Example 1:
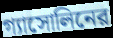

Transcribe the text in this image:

গ্যাসোলিনের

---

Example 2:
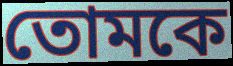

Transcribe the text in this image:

তোমকে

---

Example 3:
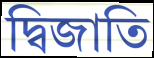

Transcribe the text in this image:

দ্বিজাতি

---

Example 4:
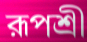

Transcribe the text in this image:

রূপশ্রী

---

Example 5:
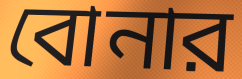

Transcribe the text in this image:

বোনার